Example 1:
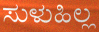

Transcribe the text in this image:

ಸುಳುಹಿಲ್ಲ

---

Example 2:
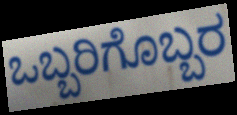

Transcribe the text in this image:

ಒಬ್ಬರಿಗೊಬ್ಬರ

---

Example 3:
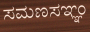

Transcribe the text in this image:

ಸಮಣಸಞ್ಞಂ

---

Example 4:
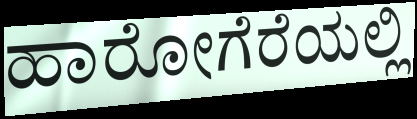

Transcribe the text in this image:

ಹಾರೋಗೆರೆಯಲ್ಲಿ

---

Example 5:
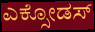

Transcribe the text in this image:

ಎಕ್ಸೋಡಸ್